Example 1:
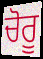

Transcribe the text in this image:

ਚੋਰੂ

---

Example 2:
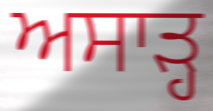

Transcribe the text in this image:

ਅਸਾੜ੍ਹ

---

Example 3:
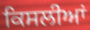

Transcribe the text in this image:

ਕਿਸਲੀਆਂ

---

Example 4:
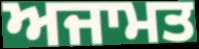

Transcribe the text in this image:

ਅਜਾਮਤ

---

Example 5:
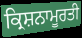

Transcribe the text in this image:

ਕ੍ਰਿਸ਼ਨਾਮੂਰਤੀ